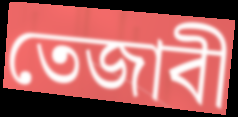
তেজাবী